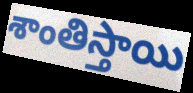
శాంతిస్తాయి